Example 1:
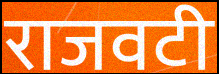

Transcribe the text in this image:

राजवटी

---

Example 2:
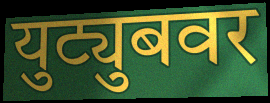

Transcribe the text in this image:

युट्युबवर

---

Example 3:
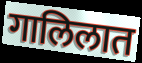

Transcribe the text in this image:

गालिलात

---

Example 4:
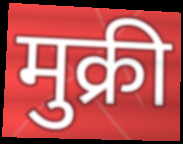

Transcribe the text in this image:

मुक्री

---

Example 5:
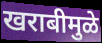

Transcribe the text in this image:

खराबीमुळे